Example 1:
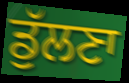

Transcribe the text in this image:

ਡੁੱਲਣਾ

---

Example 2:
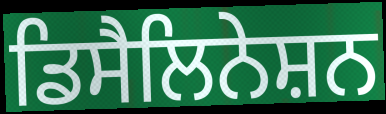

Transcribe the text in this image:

ਡਿਸੈਲਿਨੇਸ਼ਨ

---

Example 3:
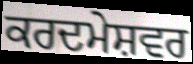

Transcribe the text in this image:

ਕਰਦਮੇਸ਼ਵਰ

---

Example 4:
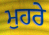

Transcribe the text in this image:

ਮੁਹਰੇ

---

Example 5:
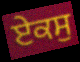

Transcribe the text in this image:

ਏਕਸੁ